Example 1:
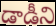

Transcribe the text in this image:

డాడీని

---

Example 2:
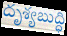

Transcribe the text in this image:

దృశ్యబుద్ధి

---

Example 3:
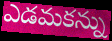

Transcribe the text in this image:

ఎడమకన్ను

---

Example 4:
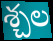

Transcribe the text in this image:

శ్చల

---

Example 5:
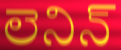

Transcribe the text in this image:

లెనిన్